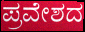
ಪ್ರವೇಶದ